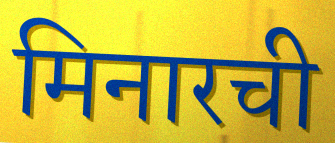
मिनारची